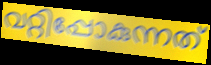
വറ്റിപ്പോകുന്നത്